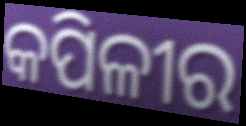
କପିଳୀର